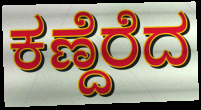
ಕಣ್ದೆರೆದ